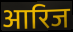
आरिज